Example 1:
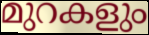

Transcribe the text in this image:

മുറകളും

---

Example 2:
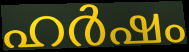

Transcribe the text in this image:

ഹർഷം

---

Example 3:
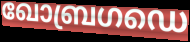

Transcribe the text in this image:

ഖോബ്രഗഡെ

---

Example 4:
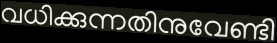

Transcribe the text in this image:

വധിക്കുന്നതിനുവേണ്ടി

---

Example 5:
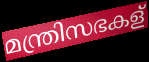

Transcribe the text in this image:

മന്ത്രിസഭകള്